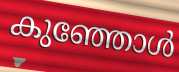
കുഞ്ഞോൾ